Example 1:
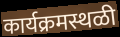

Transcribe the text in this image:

कार्यक्रमस्थळी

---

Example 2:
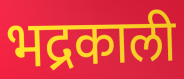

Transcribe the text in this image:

भद्रकाली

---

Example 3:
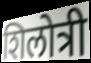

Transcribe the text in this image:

शिलोत्री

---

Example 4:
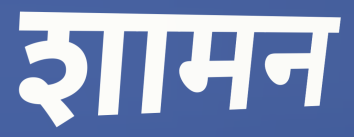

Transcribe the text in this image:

शामन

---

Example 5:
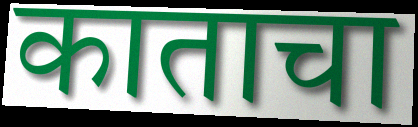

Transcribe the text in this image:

काताचा